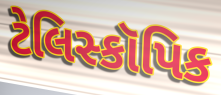
ટેલિસ્કૉપિક